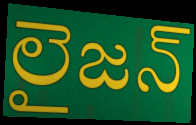
లైజన్